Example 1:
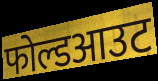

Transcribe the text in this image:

फोल्डआउट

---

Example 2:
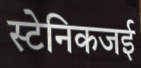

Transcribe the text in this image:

स्टेनिकजई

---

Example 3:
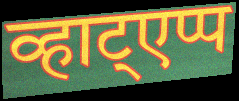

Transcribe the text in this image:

व्हाट्एप्प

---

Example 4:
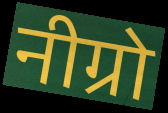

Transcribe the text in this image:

नीग्रो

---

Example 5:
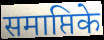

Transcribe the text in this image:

समाप्तिके